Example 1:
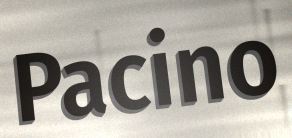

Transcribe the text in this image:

Pacino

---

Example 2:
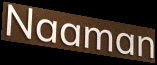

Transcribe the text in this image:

Naaman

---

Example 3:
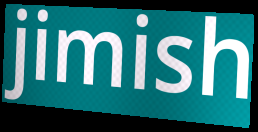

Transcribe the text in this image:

jimish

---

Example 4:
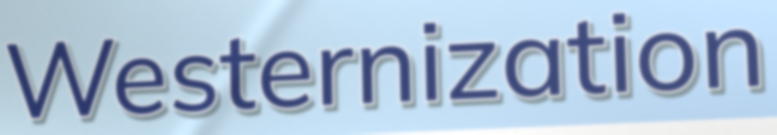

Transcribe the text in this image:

Westernization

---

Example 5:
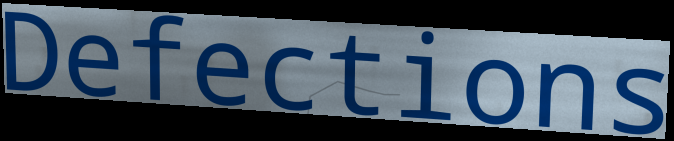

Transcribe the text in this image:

Defections